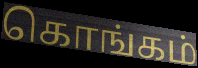
கொங்கம்